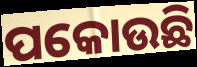
ପକୋଉଛି